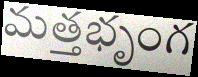
మత్తభృంగ